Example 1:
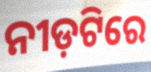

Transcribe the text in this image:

ନୀଡ଼ଟିରେ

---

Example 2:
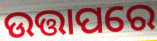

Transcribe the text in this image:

ଉତ୍ତାପରେ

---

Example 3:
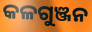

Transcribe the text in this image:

କଳଗୁଞ୍ଜନ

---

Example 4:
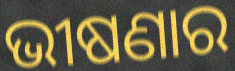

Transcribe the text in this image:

ଭୀଷଣାର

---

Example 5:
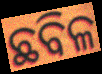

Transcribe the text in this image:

ଛବିଳ